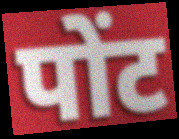
पोंट